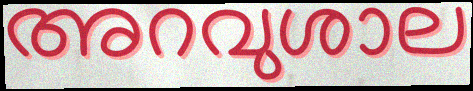
അറവുശാല